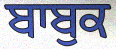
ਬਾਬੁਕ